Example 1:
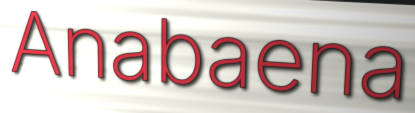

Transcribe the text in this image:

Anabaena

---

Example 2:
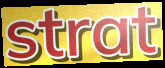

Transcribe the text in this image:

strat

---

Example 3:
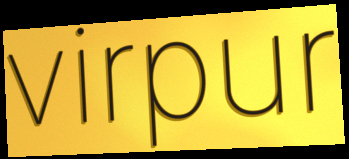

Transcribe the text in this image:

virpur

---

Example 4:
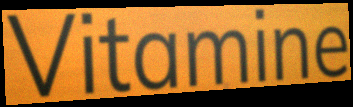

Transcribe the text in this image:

Vitamine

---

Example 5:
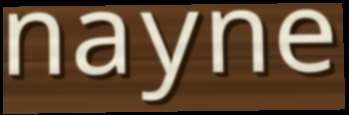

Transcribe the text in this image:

nayne